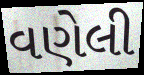
વણેલી